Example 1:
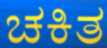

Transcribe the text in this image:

ಚಕಿತ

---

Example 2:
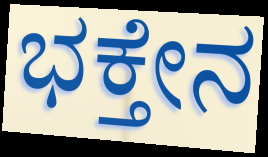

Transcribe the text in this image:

ಭಕ್ತೇನ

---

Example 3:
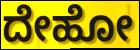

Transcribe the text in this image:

ದೇಹೋ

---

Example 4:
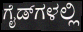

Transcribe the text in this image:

ಗೈಡ್‌ಗಳಲ್ಲಿ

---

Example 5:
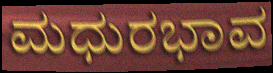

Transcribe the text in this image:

ಮಧುರಭಾವ